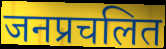
जनप्रचलित